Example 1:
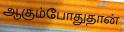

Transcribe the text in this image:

ஆகும்போதுதான்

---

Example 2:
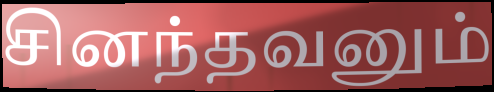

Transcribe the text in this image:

சினந்தவனும்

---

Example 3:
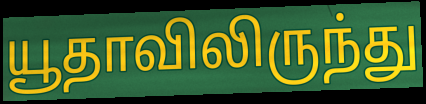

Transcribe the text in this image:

யூதாவிலிருந்து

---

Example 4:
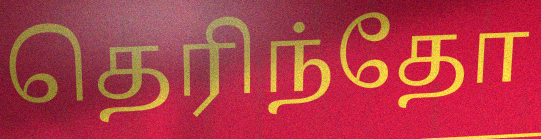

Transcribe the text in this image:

தெரிந்தோ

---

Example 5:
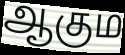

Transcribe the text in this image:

ஆகும